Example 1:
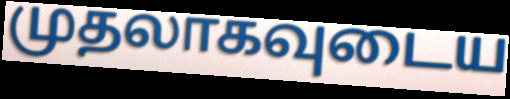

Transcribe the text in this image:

முதலாகவுடைய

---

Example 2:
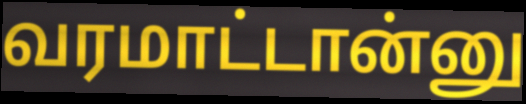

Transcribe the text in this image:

வரமாட்டான்னு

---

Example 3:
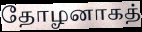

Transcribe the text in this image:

தோழனாகத்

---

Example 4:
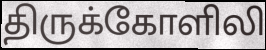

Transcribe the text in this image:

திருக்கோளிலி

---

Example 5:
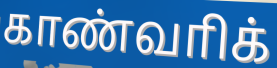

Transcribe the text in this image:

காண்வரிக்